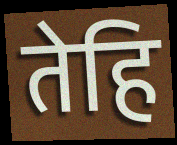
तेहि